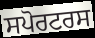
ਸਪੋਰਟਰਸ